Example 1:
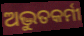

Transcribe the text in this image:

ଅଦ୍ଭୁତକର୍ମୀ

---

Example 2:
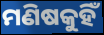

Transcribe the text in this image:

ମଣିଷକୁହିଁ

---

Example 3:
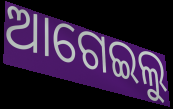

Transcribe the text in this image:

ଆଗେଇଲୁ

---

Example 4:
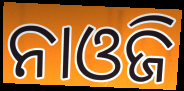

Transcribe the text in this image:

ନାଓଜି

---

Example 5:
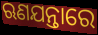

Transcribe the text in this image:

ଋଣଯନ୍ତାରେ